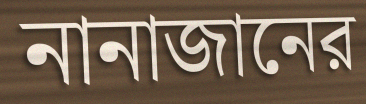
নানাজানের